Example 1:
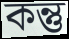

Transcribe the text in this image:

কন্তু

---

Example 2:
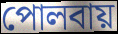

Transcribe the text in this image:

পোলবায়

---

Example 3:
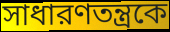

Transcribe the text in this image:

সাধারণতন্ত্রকে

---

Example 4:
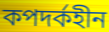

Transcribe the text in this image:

কপদর্কহীন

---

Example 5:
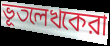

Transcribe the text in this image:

ভূতলেখকেরা